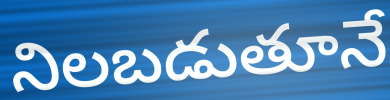
నిలబడుతూనే